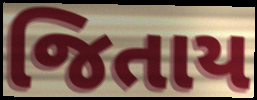
જિતાય